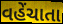
વહેંચાતા